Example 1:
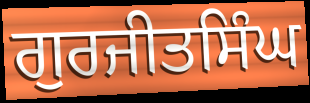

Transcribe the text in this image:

ਗੁਰਜੀਤਸਿੰਘ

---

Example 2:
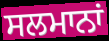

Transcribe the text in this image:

ਸਲਮਾਨਾਂ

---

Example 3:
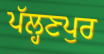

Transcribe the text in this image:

ਪੱਲ੍ਹਣਪੁਰ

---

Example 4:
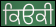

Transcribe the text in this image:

ਕਿੳਕੀ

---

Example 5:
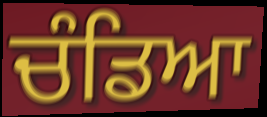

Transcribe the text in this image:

ਚੰਡਿਆ